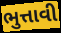
ભુત્તાવી